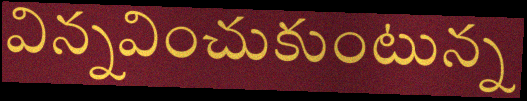
విన్నవించుకుంటున్న